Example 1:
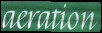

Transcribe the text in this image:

aeration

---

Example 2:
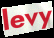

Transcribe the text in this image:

levy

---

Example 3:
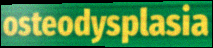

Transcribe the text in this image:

osteodysplasia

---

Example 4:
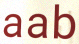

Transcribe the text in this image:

aab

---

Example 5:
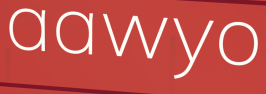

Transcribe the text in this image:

aawyo